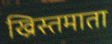
ख्रिस्तमाता